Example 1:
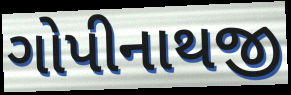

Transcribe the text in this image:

ગોપીનાથજી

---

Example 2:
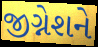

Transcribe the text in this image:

જીગ્નેશને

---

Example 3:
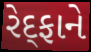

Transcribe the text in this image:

રેદ્ફાને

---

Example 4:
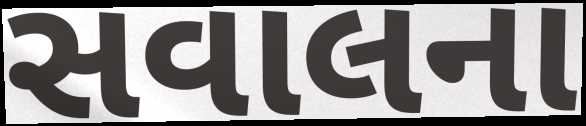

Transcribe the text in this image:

સવાલના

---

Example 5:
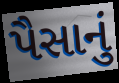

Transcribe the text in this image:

પૈસાનું